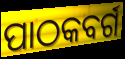
ପାଠକବର୍ଗ